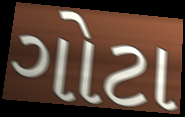
ગોટા